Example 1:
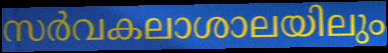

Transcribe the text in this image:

സർവകലാശാലയിലും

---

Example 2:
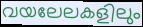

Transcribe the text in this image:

വയലേലകളിലും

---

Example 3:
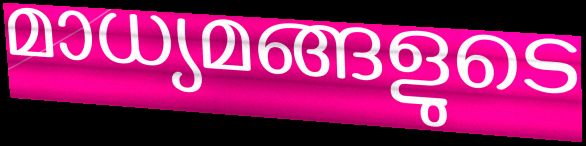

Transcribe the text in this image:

മാധ്യമങ്ങളുടെ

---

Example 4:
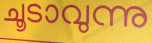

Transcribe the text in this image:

ചൂടാവുന്നു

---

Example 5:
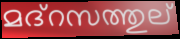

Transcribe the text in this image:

മദ്റസത്തുല്